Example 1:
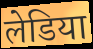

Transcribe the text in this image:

लेडिया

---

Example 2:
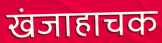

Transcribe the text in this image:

खंजाहाचक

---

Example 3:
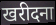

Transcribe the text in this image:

खरीदना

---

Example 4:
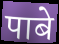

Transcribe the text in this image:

पाबे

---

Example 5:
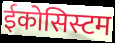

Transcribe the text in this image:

ईकोसिस्‍टम